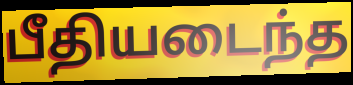
பீதியடைந்த